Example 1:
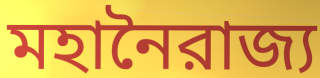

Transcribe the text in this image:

মহানৈরাজ্য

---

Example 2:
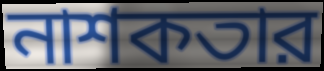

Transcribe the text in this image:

নাশকতার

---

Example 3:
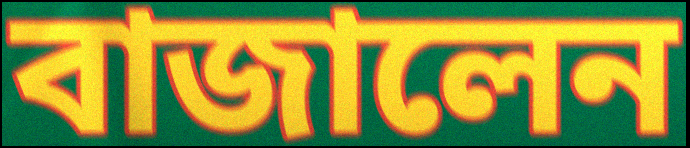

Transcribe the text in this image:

বাজালেন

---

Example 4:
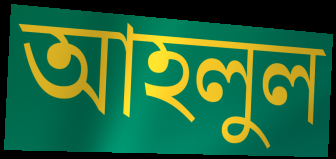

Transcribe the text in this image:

আহলুল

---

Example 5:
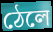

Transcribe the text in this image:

ঠেলে